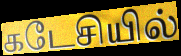
கடேசியில்